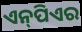
ଏନ୍‌ପିଏର